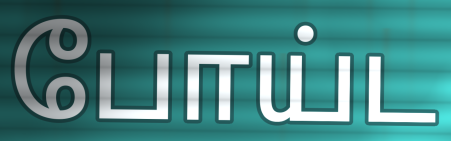
போய்ட